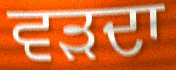
ਵੜਦਾ